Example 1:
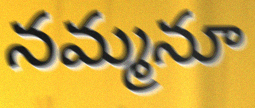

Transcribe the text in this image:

నమ్మనూ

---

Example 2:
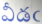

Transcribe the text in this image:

వీడఁ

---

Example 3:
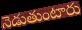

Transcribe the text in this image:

నెడుతుంటారు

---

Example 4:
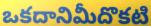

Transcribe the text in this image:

ఒకదానిమీదొకటి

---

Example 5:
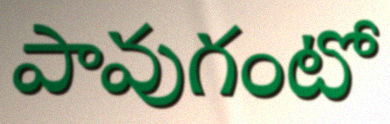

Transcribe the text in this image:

పావుగంటో